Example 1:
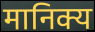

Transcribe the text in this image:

मानिक्य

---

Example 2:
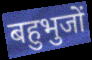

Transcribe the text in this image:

बहुभुजों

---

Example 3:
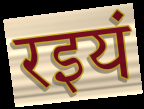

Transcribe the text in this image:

रइयं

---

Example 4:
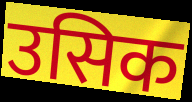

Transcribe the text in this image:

उसिक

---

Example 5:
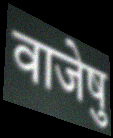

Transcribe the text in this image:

वाजेषु